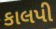
કાલપી